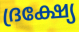
ദ്രക്ഷ്യേ